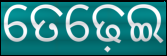
ତେଢ଼େଇ